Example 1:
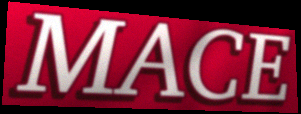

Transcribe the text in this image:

MACE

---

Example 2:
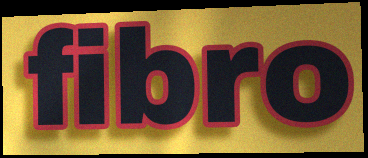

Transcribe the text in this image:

fibro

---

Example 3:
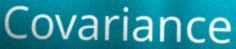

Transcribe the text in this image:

Covariance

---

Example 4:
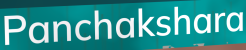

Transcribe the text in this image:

Panchakshara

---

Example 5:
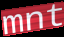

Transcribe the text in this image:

mnt